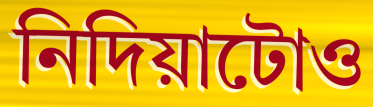
নিদিয়াটোও